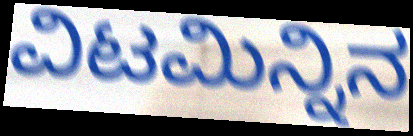
ವಿಟಮಿನ್ನಿನ